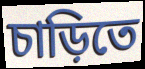
চাড়িতে